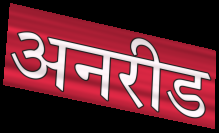
अनरीड